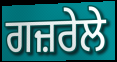
ਗਜ਼ਰੇਲੇ